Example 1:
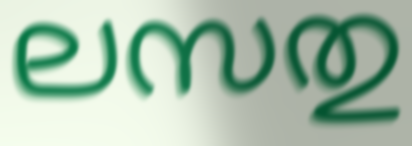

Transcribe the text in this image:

ലസതു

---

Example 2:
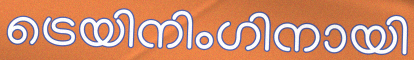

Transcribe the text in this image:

ട്രെയിനിംഗിനായി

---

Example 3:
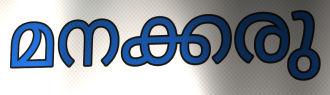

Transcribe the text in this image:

മനക്കരു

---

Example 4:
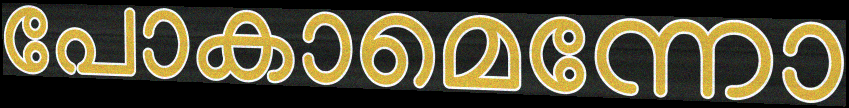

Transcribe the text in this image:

പോകാമെന്നോ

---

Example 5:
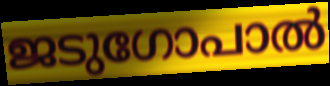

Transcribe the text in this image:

ജടുഗോപാൽ